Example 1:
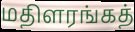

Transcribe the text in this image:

மதிளரங்கத்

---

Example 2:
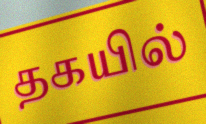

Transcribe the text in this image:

தகயில்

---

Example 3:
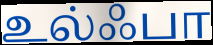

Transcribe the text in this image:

உல்ஃபா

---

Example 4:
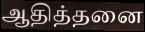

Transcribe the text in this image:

ஆதித்தனை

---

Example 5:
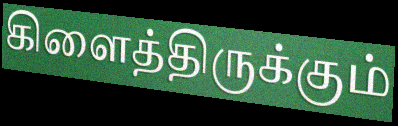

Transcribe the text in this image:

கிளைத்திருக்கும்